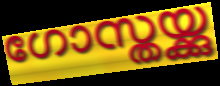
ഗോസ്തയ്ക്കു